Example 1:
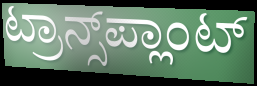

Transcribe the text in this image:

ಟ್ರಾನ್ಸ್‌ಪ್ಲಾಂಟ್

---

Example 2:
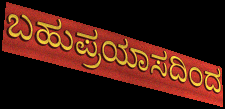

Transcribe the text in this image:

ಬಹುಪ್ರಯಾಸದಿಂದ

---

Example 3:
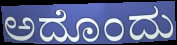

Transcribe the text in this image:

ಅದೊಂದು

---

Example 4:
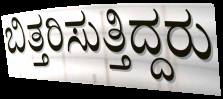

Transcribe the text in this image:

ಬಿತ್ತರಿಸುತ್ತಿದ್ದರು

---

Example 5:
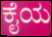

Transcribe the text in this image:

ಕೈಯ